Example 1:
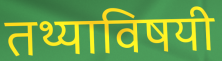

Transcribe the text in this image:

तथ्याविषयी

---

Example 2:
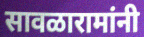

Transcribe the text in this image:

सावळारामांनी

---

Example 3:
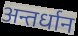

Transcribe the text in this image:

अन्तर्धान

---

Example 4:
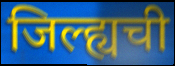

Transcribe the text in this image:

जिल्ह्यची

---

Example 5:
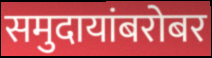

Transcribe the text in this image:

समुदायांबरोबर